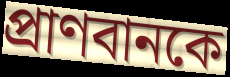
প্রাণবানকে